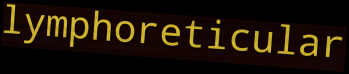
lymphoreticular